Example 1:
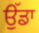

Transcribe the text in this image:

ਉੱਡਾ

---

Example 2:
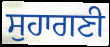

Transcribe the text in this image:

ਸੁਹਾਗਣੀ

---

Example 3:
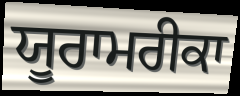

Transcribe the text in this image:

ਯੂਰਾਮਰੀਕਾ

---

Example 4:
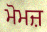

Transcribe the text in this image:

ਮੋਮਜ਼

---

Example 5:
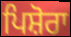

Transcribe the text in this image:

ਪਿਸ਼ੋਰਾ